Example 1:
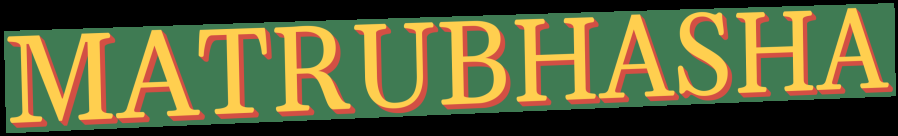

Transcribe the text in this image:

MATRUBHASHA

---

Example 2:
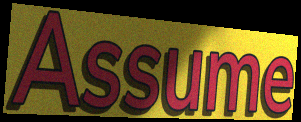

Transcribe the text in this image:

Assume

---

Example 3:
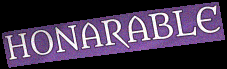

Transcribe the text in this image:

HONARABLE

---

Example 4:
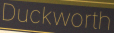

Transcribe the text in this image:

Duckworth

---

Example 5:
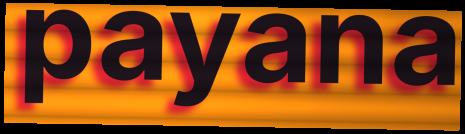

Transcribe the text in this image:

payana